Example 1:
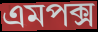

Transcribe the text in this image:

এমপক্স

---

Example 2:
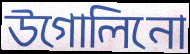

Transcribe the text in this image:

উগোলিনো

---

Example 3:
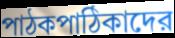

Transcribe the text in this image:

পাঠকপাঠিকাদের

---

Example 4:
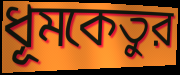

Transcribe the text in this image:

ধূমকেতুর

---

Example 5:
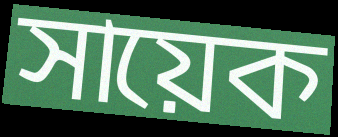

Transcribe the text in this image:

সায়েক